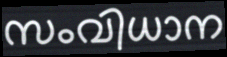
സംവിധാന